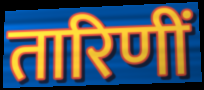
तारिणीं